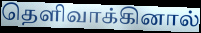
தெளிவாக்கினால்